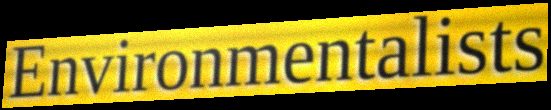
Environmentalists